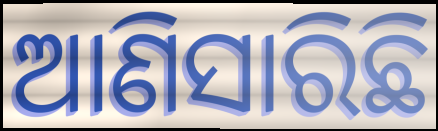
ଆଣିସାରିଛି